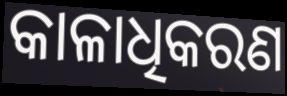
କାଳାଧିକରଣ